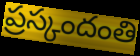
ప్రస్కందంతి